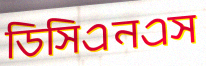
ডিসিএনএস